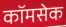
कॉमसेक